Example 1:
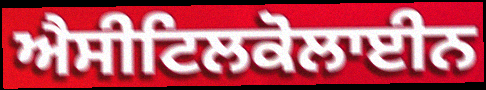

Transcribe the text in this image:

ਐਸੀਟਿਲਕੋਲਾਈਨ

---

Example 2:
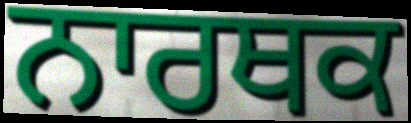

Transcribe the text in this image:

ਨਾਰਥਕ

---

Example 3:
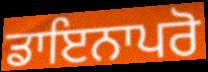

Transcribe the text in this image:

ਡਾਇਨਾਪਰੋ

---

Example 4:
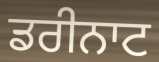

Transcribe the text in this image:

ਡਰੀਨਾਟ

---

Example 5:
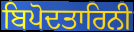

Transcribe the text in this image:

ਬਿਪੋਦਤਾਰਿਨੀ